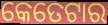
କେତେଟାର